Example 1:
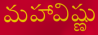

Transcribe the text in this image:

మహావిష్ణు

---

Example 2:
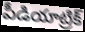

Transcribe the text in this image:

పీడియాట్రిక్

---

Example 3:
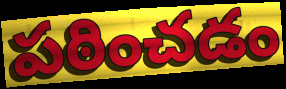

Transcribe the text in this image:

పఠించడం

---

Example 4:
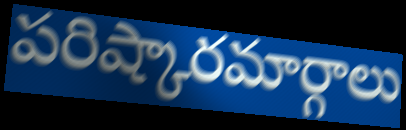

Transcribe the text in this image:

పరిష్కారమార్గాలు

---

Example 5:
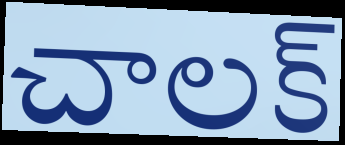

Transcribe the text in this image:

చాలక్